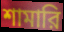
শামারি